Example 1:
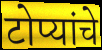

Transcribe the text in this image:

टोप्यांचे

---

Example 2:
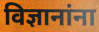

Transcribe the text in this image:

विज्ञानांना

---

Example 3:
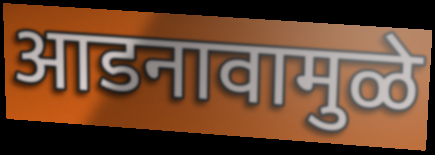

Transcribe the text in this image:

आडनावामुळे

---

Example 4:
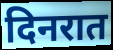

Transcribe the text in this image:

दिनरात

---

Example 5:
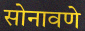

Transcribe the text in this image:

सोनावणे